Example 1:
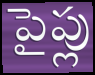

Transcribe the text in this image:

పైప్లు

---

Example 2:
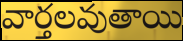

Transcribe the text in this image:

వార్తలవుతాయి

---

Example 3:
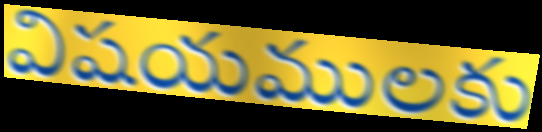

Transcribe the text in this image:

విషయములకు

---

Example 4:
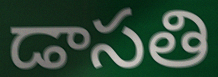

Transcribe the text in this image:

డాసతి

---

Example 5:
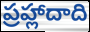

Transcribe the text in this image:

ప్రహ్లాదాది